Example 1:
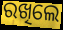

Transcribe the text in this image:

ରଖିଲେ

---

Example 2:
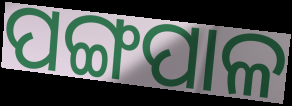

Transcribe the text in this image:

ପଙ୍ଗପାଳ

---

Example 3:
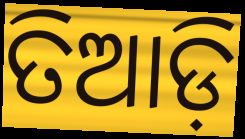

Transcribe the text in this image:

ତିଆଡ଼ି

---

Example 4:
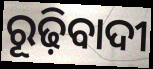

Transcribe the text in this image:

ରୂଢ଼ିବାଦୀ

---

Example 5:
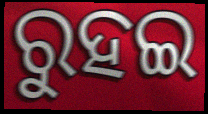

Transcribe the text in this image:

ରୁହଇ